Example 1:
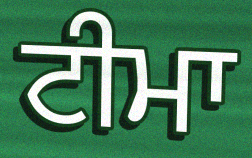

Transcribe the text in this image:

ਟੀਮਾ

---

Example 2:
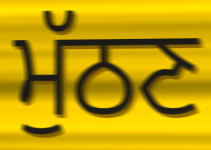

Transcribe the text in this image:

ਮੁੱਠਣ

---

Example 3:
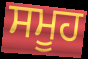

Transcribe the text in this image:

ਸਮੂਹ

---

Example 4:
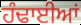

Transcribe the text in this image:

ਹੰਢਾਈਆਂ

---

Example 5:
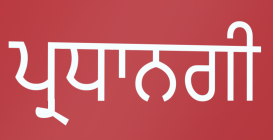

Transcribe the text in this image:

ਪ੍ਰਧਾਨਗੀ